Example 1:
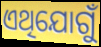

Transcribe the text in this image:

ଏଥିଯୋଗୁଁ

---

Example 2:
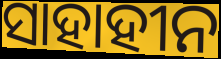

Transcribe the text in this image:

ସାହାହୀନ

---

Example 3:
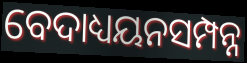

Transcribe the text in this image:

ବେଦାଧ୍ୟୟନସମ୍ପନ୍ନ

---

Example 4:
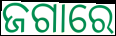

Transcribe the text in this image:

ଜଗାରେ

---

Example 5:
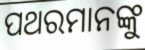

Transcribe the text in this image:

ପଥରମାନଙ୍କୁ